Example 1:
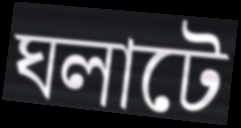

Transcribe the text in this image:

ঘলাটে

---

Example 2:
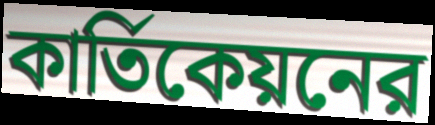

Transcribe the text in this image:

কার্তিকেয়নের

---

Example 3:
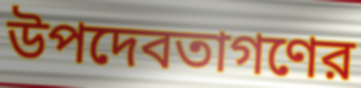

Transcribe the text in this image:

উপদেবতাগণের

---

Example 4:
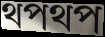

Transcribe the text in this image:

থপথপ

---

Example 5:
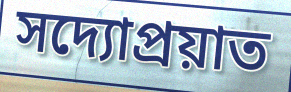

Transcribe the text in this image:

সদ্যোপ্রয়াত